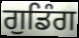
ਗੁਡਿੰਗ